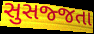
સુસજ્જતા